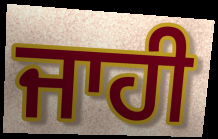
ਜਾਹੀ